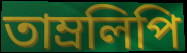
তাম্রলিপি